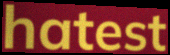
hatest